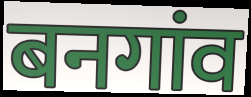
बनगांव